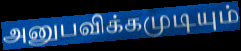
அனுபவிக்கமுடியும்